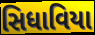
સિધાવિયા